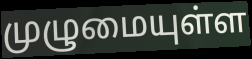
முழுமையுள்ள